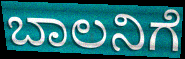
ಬಾಲನಿಗೆ